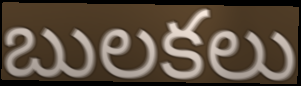
బులకలు